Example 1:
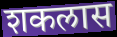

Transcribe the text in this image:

शकलास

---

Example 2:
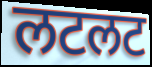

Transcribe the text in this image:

लटलट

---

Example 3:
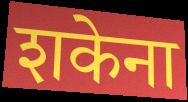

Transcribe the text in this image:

शकेना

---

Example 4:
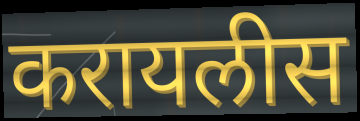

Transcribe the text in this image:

करायलीस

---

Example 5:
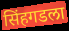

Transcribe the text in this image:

सिंहगडला